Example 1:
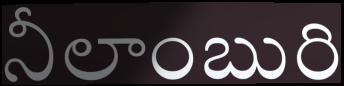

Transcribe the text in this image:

నీలాంబురి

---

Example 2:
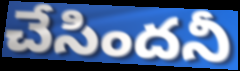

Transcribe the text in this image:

చేసిందనీ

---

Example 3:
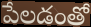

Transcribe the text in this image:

పేలడంతో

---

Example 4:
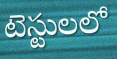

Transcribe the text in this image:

టెస్టులలో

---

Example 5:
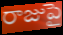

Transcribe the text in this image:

రాజుపై